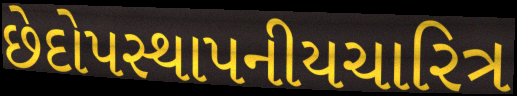
છેદોપસ્થાપનીયચારિત્ર